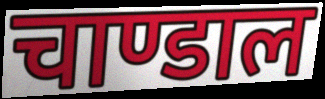
चाण्डाल